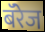
बॅरेज